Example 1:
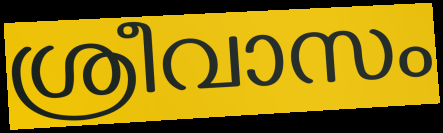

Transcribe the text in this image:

ശ്രീവാസം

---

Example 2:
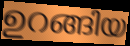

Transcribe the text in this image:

ഉറങ്ങിയ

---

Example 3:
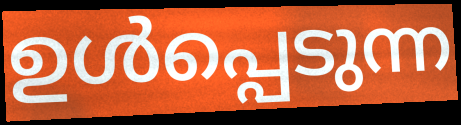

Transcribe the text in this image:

ഉൾപ്പെടുന്ന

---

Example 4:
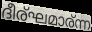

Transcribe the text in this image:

ദീര്ഘമാര്ന്ന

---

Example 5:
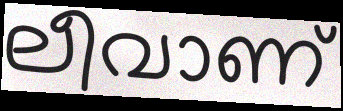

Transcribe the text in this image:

ലീവാണ്